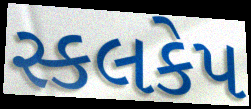
સ્કલકેપ